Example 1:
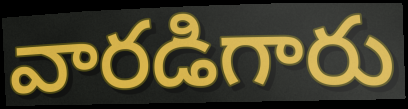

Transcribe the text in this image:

వారడిగారు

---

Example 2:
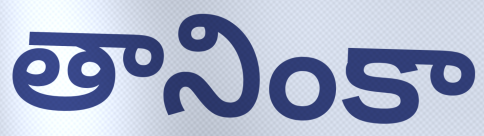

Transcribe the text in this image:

తానింకా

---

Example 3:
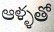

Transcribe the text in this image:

ఆళ్ళతో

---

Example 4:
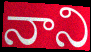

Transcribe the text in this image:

నాని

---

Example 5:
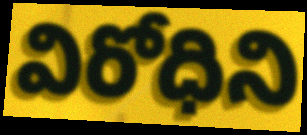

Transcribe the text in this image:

విరోధిని